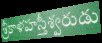
శ్రీకాళహస్తీశ్వరుడు